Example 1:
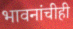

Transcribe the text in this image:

भावनांचीही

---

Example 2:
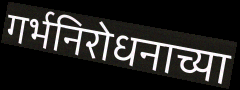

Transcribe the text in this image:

गर्भनिरोधनाच्या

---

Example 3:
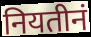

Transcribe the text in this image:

नियतीनं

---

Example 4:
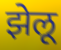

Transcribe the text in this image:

झेलू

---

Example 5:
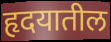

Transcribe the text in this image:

हृदयातील